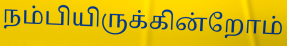
நம்பியிருக்கின்றோம்